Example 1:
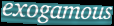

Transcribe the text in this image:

exogamous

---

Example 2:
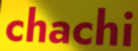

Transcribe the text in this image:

chachi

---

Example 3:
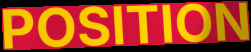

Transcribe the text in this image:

POSITION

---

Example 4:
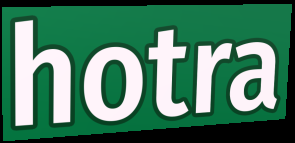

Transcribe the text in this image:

hotra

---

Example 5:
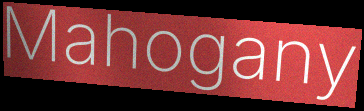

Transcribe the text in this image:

Mahogany